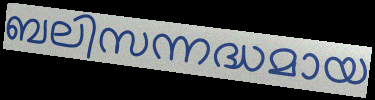
ബലിസന്നദ്ധമായ